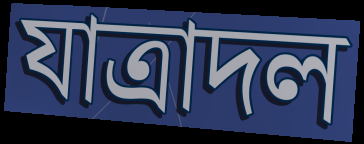
যাত্রাদল